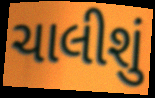
ચાલીશું